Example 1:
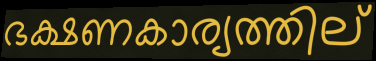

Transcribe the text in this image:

ഭക്ഷണകാര്യത്തില്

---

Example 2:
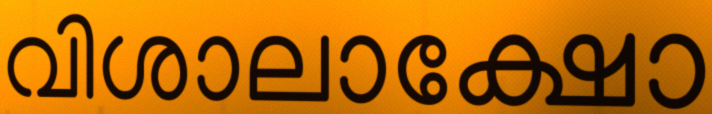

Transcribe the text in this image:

വിശാലാക്ഷോ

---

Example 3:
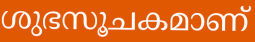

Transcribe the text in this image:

ശുഭസൂചകമാണ്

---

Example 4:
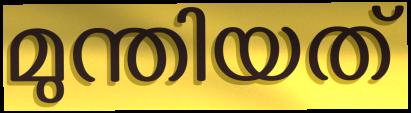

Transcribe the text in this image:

മുന്തിയത്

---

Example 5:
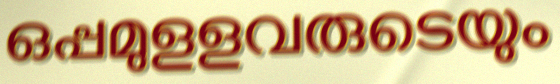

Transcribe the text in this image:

ഒപ്പമുളളവരുടെയും